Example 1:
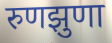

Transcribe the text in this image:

रुणझुणा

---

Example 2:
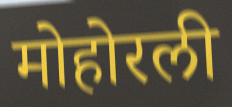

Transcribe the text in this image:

मोहोरली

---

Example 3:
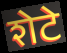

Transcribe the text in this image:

शेटे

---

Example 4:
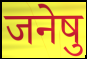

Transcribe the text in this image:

जनेषु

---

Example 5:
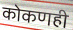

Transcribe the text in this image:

कोकणही